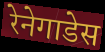
रेनेगाडेस